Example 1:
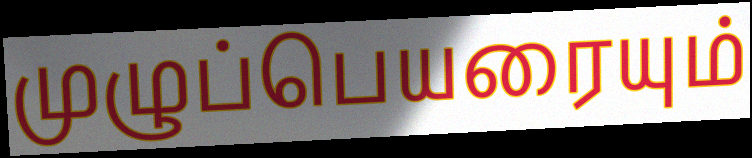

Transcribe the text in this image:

முழுப்பெயரையும்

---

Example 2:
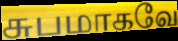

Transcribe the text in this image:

சுபமாகவே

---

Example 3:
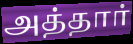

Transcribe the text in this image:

அத்தார்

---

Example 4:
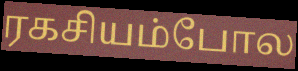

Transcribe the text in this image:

ரகசியம்போல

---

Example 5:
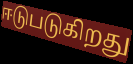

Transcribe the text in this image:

ஈடுபடுகிறது